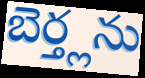
బెర్త్లను